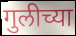
गुलीच्या